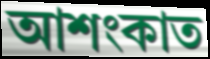
আশংকাত